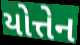
યોત્તેન